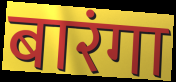
बारंगा